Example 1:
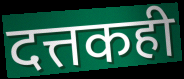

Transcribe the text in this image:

दत्तकही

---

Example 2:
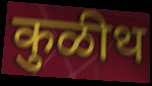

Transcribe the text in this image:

कुळीथ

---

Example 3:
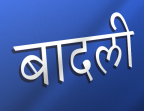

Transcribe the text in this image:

बादली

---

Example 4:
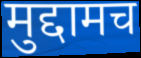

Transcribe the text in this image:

मुद्दामच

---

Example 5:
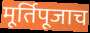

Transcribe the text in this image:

मूर्तिपूजाच